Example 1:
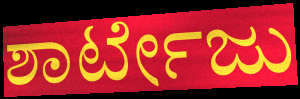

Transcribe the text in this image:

ಶಾರ್ಟೇಜು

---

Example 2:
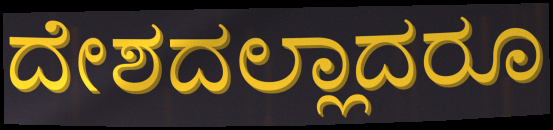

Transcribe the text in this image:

ದೇಶದಲ್ಲಾದರೂ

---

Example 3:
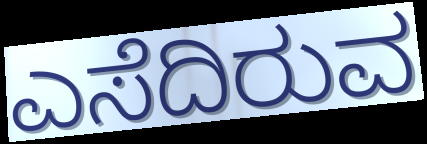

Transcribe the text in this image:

ಎಸೆದಿರುವ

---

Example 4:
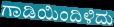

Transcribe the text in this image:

ಗಾಡಿಯಿಂದಿಳಿದು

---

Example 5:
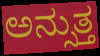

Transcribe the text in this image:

ಅನ್ಸುತ್ತ